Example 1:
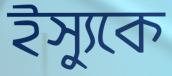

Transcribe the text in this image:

ইস্যুকে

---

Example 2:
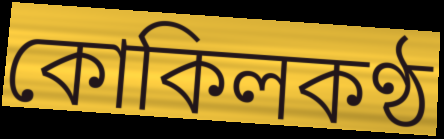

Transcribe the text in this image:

কোকিলকণ্ঠ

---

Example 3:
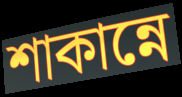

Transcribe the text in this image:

শাকান্নে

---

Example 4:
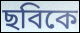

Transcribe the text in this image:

ছবিকে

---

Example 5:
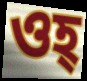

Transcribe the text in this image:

ওহ্